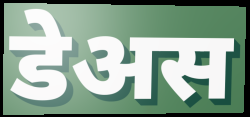
डेअस